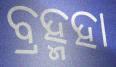
ବ୍ରହ୍ମହା